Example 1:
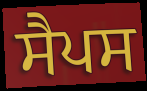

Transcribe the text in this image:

ਸੈਪਸ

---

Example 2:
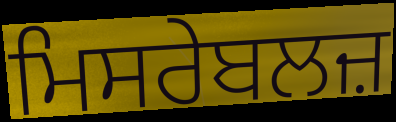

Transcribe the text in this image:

ਮਿਸਰੇਬਲਜ਼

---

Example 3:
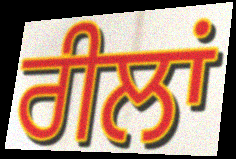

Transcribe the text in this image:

ਰੀਲਾਂ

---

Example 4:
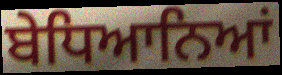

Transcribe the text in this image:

ਬੇਧਿਆਨਿਆਂ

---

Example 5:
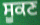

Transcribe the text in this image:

ਸੂਕਣ